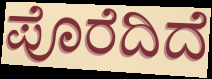
ಪೊರೆದಿದೆ